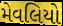
મેવલિયો